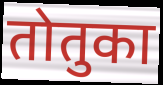
तोतुका